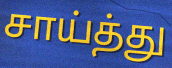
சாய்த்து